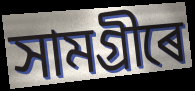
সামগ্ৰীৰে